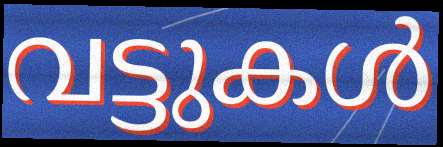
വട്ടുകൾ